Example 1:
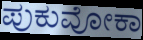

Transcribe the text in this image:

ಪುಕುವೋಕಾ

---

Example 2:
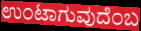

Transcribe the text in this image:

ಉಂಟಾಗುವುದೆಂಬ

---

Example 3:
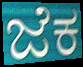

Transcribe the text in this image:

ಜೆಕ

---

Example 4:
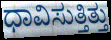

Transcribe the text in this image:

ಧಾವಿಸುತ್ತಿತ್ತು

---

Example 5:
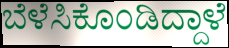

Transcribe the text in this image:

ಬೆಳೆಸಿಕೊಂಡಿದ್ದಾಳೆ